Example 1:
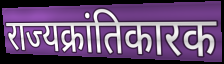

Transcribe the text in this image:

राज्यक्रांतिकारक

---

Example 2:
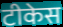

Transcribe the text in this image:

टीकेस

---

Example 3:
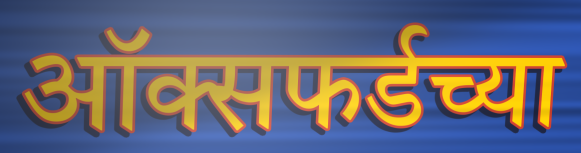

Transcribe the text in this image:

ऑक्सफर्डच्या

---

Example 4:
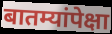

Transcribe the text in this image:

बातम्यांपेक्षा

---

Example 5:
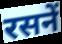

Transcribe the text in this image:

रसनें